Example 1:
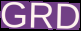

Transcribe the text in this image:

GRD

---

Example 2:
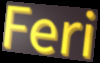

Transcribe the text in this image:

Feri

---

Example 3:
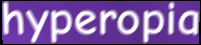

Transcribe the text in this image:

hyperopia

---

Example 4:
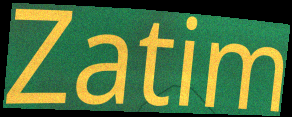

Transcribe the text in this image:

Zatim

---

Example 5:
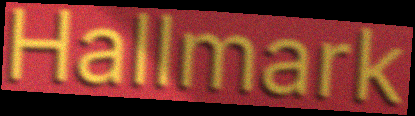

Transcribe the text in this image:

Hallmark